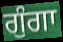
ਗੁੰਗਾ